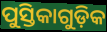
ପୁସ୍ତିକାଗୁଡ଼ିକ